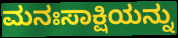
ಮನಃಸಾಕ್ಷಿಯನ್ನು